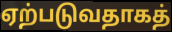
ஏற்படுவதாகத்